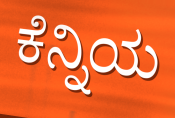
ಕೆನ್ನಿಯ